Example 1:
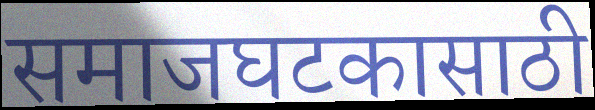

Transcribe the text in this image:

समाजघटकासाठी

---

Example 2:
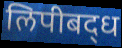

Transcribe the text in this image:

लिपीबद्ध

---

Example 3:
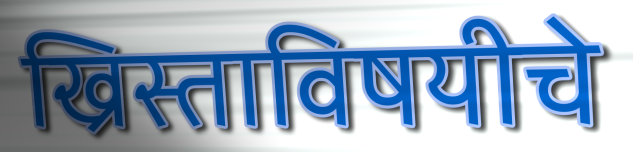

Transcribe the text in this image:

ख्रिस्ताविषयीचे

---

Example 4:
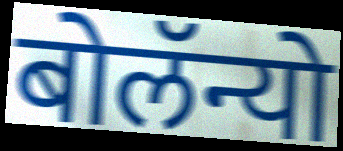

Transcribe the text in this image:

बोलॅन्यो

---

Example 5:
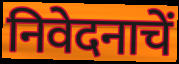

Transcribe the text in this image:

निवेदनाचें